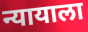
न्यायाला